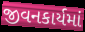
જીવનકાર્યમાં